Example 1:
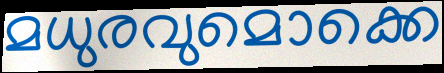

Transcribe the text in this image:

മധുരവുമൊക്കെ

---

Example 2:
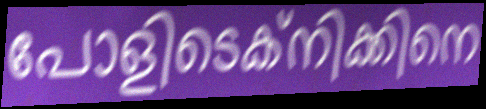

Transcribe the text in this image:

പോളിടെക്നിക്കിനെ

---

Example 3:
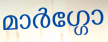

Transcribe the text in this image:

മാർഗ്ഗോ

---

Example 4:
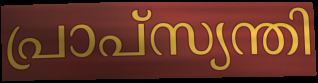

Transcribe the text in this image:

പ്രാപ്സ്യന്തി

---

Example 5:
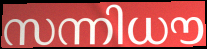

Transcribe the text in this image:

സന്നിധൗ